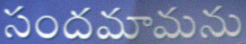
సందమామను